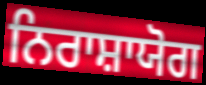
ਨਿਰਾਸ਼ਾਯੋਗ